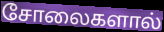
சோலைகளால்